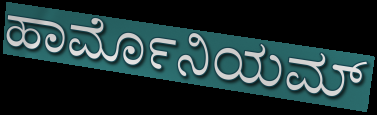
ಹಾರ್ಮೊನಿಯಮ್